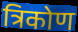
त्रिकोण